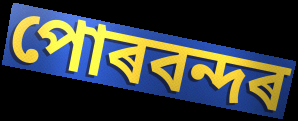
পোৰবন্দৰ